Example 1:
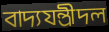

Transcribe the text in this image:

বাদ্যযন্ত্রীদল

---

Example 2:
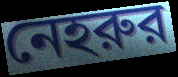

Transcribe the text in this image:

নেহরুর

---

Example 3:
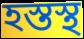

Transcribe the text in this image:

হস্তস্থ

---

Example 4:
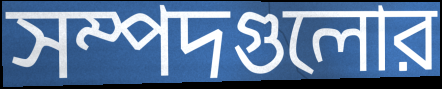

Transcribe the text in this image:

সম্পদগুলোর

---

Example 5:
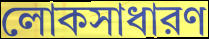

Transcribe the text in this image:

লোকসাধারণ